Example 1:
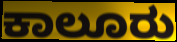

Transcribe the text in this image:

ಕಾಲೂರು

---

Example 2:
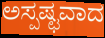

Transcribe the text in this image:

ಅಸ್ಪಷ್ಟವಾದ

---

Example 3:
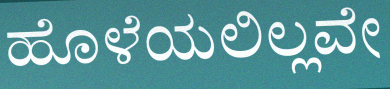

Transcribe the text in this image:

ಹೊಳೆಯಲಿಲ್ಲವೇ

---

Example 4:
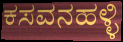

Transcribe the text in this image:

ಕಸವನಹಳ್ಳಿ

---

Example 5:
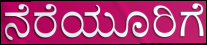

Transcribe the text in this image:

ನೆರೆಯೂರಿಗೆ